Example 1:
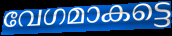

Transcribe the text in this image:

വേഗമാകട്ടെ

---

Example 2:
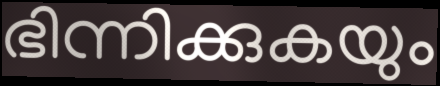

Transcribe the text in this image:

ഭിന്നിക്കുകയും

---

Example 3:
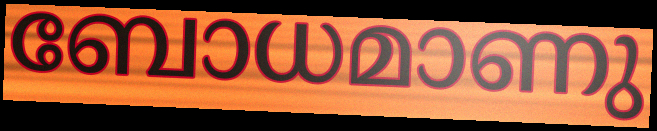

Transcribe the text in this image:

ബോധമാണു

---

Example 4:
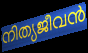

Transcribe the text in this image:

നിത്യജീവൻ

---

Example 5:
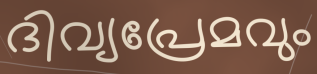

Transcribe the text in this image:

ദിവ്യപ്രേമവും